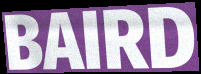
BAIRD